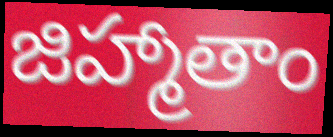
జిహ్మాతాం